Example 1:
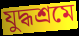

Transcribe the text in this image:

যুদ্ধশ্রমে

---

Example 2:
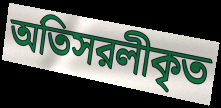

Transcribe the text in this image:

অতিসরলীকৃত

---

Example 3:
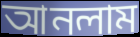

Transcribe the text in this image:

আনলাম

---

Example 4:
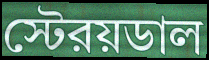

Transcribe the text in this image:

স্টেরয়ডাল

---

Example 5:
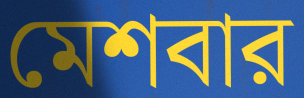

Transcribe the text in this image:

মেশবার